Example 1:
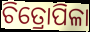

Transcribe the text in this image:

ଚିତ୍ରୋପିଳା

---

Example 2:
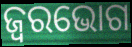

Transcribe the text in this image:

ଜ୍ୱରଭୋଗ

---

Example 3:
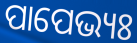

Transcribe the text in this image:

ପାପେଭ୍ୟଃ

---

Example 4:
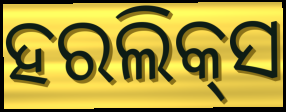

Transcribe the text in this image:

ହରଲିକ୍‌ସ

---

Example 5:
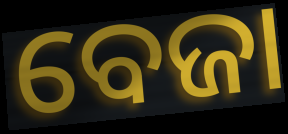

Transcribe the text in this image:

ବେଜା